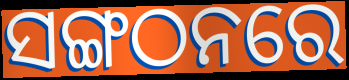
ସଙ୍ଗଠନରେ